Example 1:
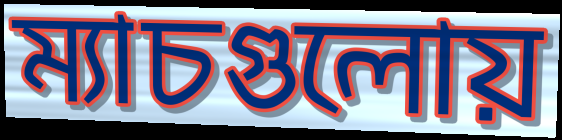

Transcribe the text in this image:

ম্যাচগুলোয়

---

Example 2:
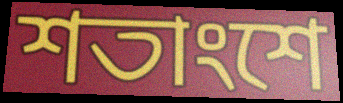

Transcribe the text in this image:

শতাংশে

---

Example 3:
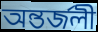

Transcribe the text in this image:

অন্তর্জলী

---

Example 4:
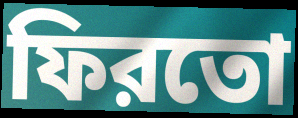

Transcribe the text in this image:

ফিরতো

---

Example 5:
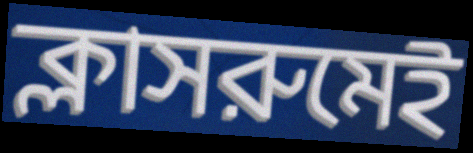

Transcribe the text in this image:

ক্লাসরুমেই